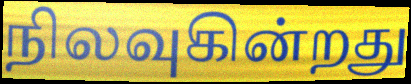
நிலவுகின்றது